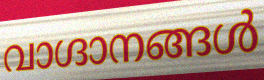
വാഗ്ദാനങ്ങൾ